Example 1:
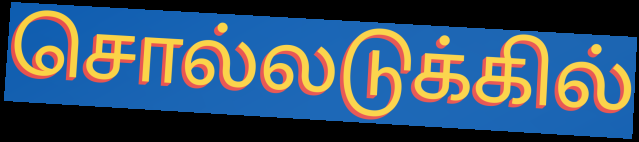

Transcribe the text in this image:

சொல்லடுக்கில்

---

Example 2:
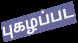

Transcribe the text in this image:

புகழப்பட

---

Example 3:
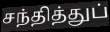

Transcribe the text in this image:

சந்தித்துப்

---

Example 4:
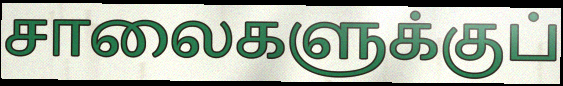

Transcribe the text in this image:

சாலைகளுக்குப்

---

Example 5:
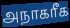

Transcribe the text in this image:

அநாகரீக